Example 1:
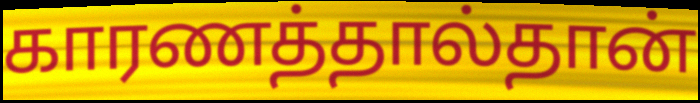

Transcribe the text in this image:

காரணத்தால்தான்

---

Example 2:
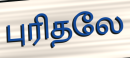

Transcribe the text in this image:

புரிதலே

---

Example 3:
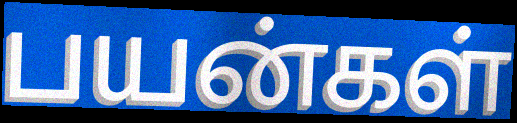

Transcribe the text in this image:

பயன்கள்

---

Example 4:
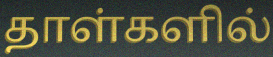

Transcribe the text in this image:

தாள்களில்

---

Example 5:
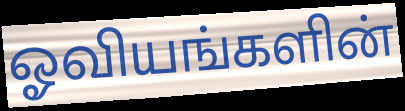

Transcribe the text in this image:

ஓவியங்களின்